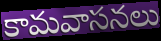
కామవాసనలు